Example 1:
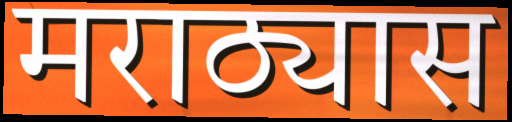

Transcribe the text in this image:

मराठ्यास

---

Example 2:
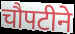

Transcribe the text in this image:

चौपटीने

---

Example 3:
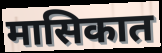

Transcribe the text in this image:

मासिकात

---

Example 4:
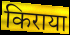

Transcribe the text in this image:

किराया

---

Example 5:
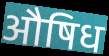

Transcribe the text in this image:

औषिध